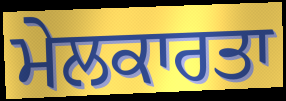
ਮੇਲਕਾਰਤਾ